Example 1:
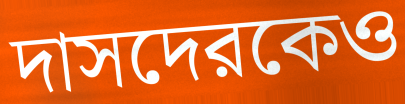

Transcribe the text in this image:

দাসদেরকেও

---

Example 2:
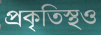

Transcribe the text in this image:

প্রকৃতিস্থও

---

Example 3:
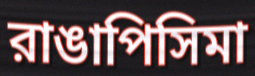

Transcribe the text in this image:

রাঙাপিসিমা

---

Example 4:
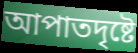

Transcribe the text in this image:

আপাতদৃষ্টে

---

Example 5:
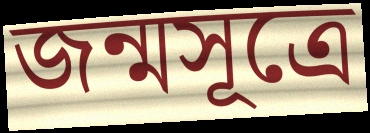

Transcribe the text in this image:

জন্মসূত্রে